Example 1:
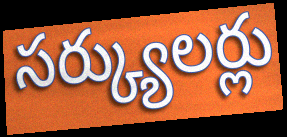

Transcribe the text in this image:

సర్క్యులర్లు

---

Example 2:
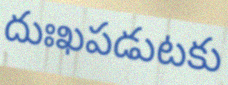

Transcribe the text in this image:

దుఃఖపడుటకు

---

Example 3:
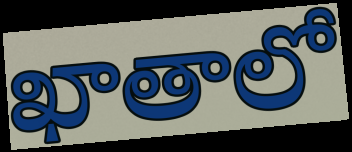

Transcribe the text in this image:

ఖాతాలో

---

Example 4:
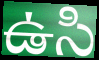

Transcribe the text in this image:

ఉసి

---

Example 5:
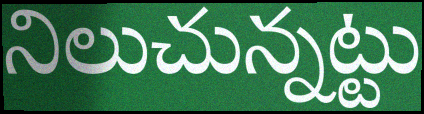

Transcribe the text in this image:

నిలుచున్నట్టు